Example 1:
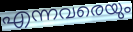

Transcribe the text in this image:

എന്നവരെയും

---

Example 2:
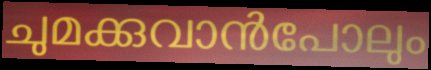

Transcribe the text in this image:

ചുമക്കുവാൻപോലും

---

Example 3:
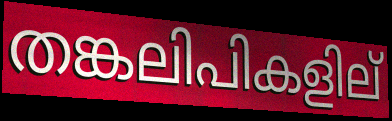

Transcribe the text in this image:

തങ്കലിപികളില്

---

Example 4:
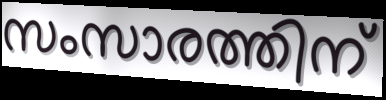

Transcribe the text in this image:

സംസാരത്തിന്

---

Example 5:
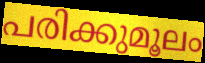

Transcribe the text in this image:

പരിക്കുമൂലം